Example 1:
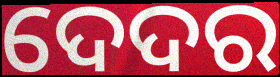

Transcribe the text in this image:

ଦେଦର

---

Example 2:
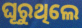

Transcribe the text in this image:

ଘୂରୁଥିଲେ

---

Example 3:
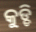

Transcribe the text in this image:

କୁଡ୍ଡି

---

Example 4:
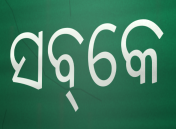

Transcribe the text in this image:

ସବ୍‌କେ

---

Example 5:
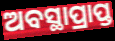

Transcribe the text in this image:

ଅବସ୍ଥାପ୍ରାପ୍ତ